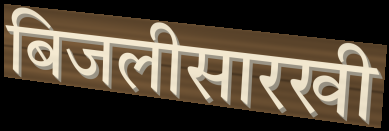
बिजलीसारखी